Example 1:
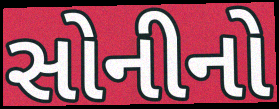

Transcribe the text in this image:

સોનીનો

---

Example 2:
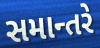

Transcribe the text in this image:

સમાન્તરે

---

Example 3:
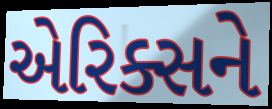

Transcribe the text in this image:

એરિક્સને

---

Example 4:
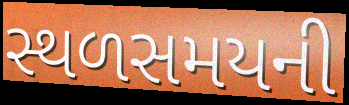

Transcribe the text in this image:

સ્થળસમયની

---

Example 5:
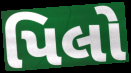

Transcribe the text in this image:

પિલો